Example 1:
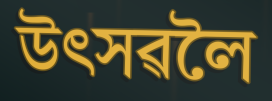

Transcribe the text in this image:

উৎসৱলৈ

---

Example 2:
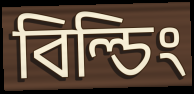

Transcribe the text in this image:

বিল্ডিং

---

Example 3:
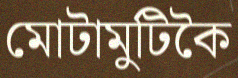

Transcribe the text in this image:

মোটামুটিকৈ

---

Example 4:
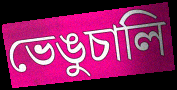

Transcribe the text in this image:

ভেঙুচালি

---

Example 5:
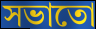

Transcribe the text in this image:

সভাতো